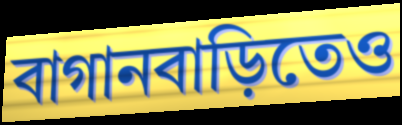
বাগানবাড়িতেও